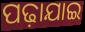
ପଢ଼ାଯାଇ